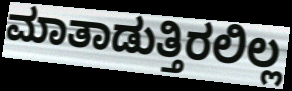
ಮಾತಾಡುತ್ತಿರಲಿಲ್ಲ